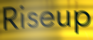
Riseup